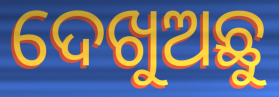
ଦେଖୁଅଛୁ